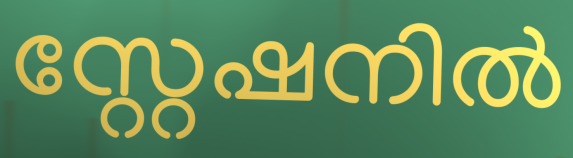
സ്റ്റേഷനിൽ